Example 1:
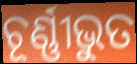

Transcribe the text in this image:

ଚୂର୍ଣ୍ଣୀଭୁତ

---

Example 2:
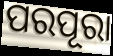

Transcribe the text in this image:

ପରପୂରା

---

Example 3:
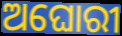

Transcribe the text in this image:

ଅଘୋରୀ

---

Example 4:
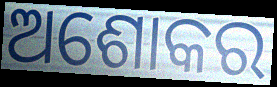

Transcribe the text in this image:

ଅଶୋକର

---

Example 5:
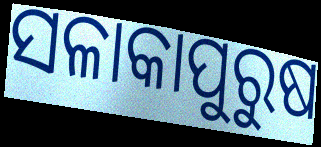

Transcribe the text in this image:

ସଳାକାପୁରୁଷ